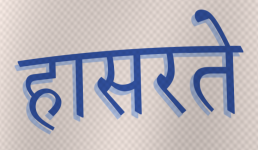
हासरते